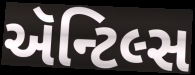
ઍન્ટિલ્સ